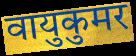
वायुकुमर